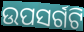
ଉପସର୍ଗଟି